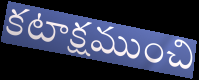
కటాక్షముంచి